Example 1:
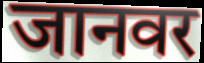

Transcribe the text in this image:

जानवर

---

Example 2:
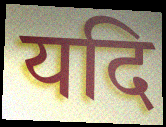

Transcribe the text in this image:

यदि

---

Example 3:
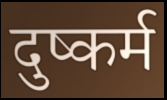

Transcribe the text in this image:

दुष्कर्म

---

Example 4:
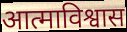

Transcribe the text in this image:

आत्माविश्वास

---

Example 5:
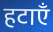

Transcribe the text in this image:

हटाएँ